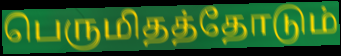
பெருமிதத்தோடும்